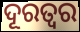
ଦୂରତ୍ଵର